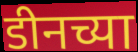
डीनच्या